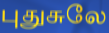
புதுசுலே